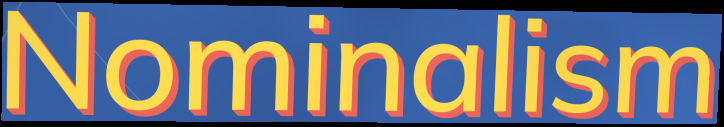
Nominalism